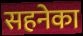
सहनेका